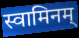
स्वामिनम्